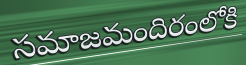
సమాజమందిరంలోకి